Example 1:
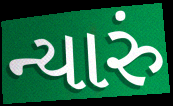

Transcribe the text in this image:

ન્યારું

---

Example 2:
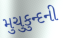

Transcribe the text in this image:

મુચુકુન્દની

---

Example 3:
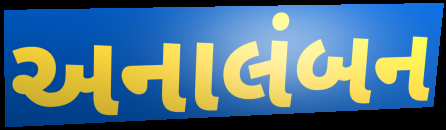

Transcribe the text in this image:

અનાલંબન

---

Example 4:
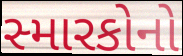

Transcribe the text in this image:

સ્મારકોનો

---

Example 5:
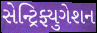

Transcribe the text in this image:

સેન્ટ્રિફ્યુગેશન